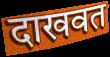
दाखवत